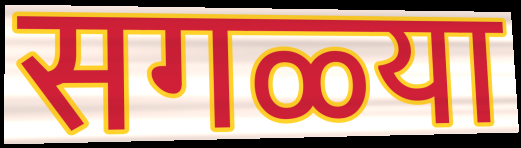
सगळ्या